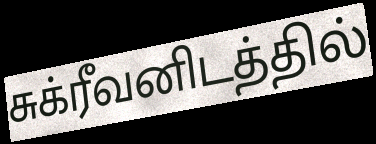
சுக்ரீவனிடத்தில்